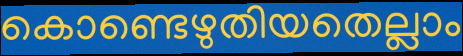
കൊണ്ടെഴുതിയതെല്ലാം